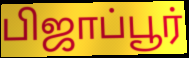
பிஜாப்பூர்